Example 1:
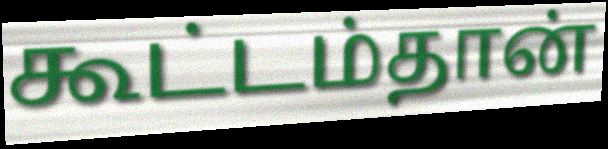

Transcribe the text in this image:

கூட்டம்தான்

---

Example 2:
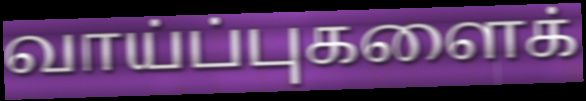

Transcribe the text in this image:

வாய்ப்புகளைக்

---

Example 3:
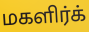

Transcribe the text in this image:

மகளிர்க்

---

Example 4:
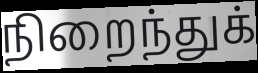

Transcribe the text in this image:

நிறைந்துக்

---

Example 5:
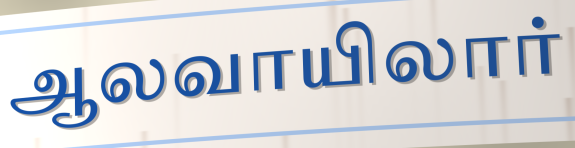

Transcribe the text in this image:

ஆலவாயிலார்